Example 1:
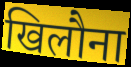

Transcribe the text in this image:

खिलौना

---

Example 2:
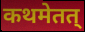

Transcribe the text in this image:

कथमेतत्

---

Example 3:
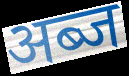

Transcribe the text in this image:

अब्ज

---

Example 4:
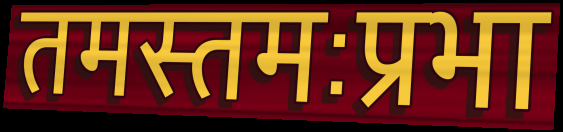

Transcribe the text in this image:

तमस्तमःप्रभा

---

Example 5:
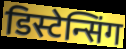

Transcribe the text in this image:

डिस्टेन्सिंग